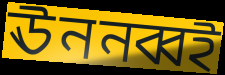
ঊননব্বই